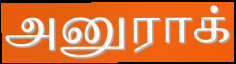
அனுராக்